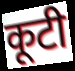
कूटी